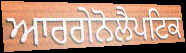
ਆਰਗੇਨੋਲੈਪਟਿਕ